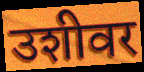
उशीवर